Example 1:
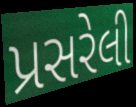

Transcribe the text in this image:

પ્રસરેલી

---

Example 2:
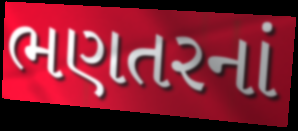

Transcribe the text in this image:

ભણતરનાં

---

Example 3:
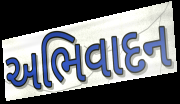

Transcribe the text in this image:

અભિવાદન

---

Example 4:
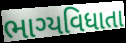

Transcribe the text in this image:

ભાગ્યવિધાતા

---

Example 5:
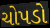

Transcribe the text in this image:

ચોપડો